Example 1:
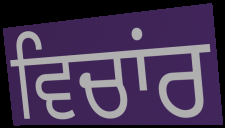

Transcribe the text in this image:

ਵਿਚਾਂਰ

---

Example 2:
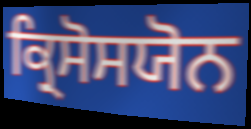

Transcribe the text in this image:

ਕ੍ਰਿਸੋਸਯੋਨ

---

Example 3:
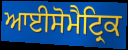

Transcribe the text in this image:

ਆਈਸੋਮੈਟ੍ਰਿਕ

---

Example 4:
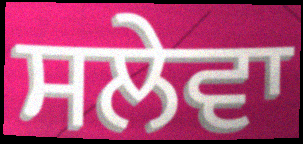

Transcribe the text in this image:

ਸਲੇਵਾ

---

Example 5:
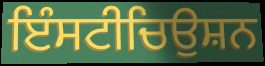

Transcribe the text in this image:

ਇੰਸਟੀਚਿਉਸ਼ਨ